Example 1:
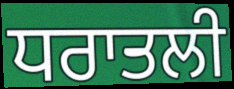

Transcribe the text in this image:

ਧਰਾਤਲੀ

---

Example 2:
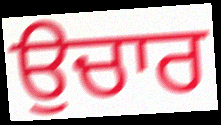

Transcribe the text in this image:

ਉਚਾਰ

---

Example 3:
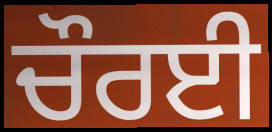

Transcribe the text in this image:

ਚੌਰਈ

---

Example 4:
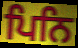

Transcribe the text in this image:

ਪਿਨਿ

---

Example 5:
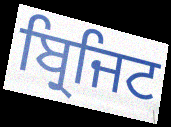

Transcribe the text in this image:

ਬ੍ਰਿਜਿਟ